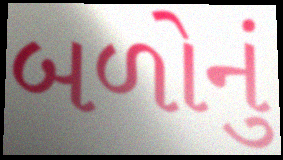
બળોનું